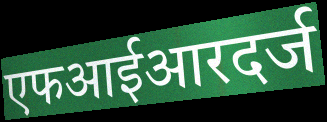
एफआईआरदर्ज